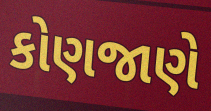
કોણજાણે